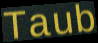
Taub